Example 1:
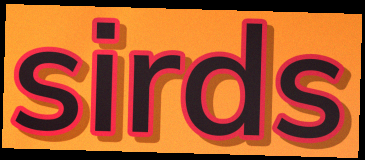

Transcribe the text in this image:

sirds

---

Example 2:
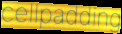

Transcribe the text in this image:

cellpadding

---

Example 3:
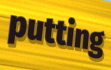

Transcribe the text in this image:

putting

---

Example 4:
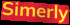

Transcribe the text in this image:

Simerly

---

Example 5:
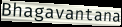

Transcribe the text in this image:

Bhagavantana